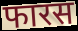
फारस